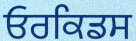
ਓਰਕਿਡਸ